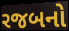
રજબનો